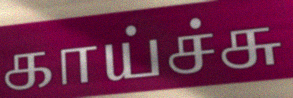
காய்ச்சு